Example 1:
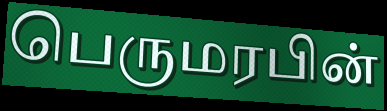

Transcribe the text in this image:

பெருமரபின்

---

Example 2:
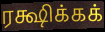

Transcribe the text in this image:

ரக்ஷிக்கக்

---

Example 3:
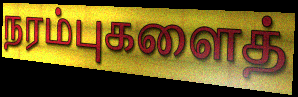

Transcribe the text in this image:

நரம்புகளைத்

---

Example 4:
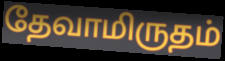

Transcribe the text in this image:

தேவாமிருதம்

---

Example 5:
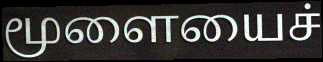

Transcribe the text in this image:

மூளையைச்